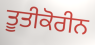
ਤੂਤੀਕੋਰੀਨ